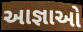
આજ્ઞાઓ